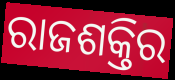
ରାଜଶକ୍ତିର